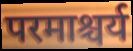
परमाश्चर्य